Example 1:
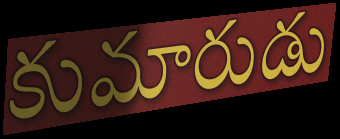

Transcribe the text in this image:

కుమారుడు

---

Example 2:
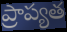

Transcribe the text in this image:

ప్రాప్యత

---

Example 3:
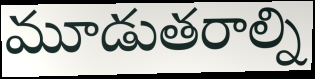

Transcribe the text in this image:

మూడుతరాల్ని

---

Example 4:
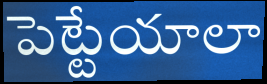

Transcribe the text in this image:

పెట్టేయాలా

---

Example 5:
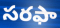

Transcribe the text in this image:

సరఫా